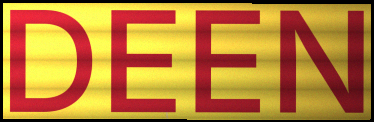
DEEN